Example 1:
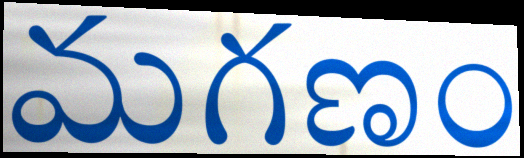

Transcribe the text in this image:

మగణం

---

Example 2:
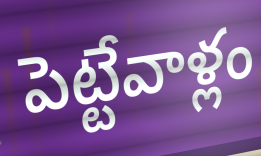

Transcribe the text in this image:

పెట్టేవాళ్లం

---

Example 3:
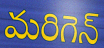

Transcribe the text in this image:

మరిగెన్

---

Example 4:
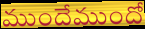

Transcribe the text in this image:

ముందేముందో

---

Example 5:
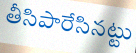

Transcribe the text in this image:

తీసిపారేసినట్టు